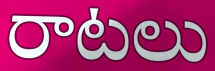
రాటలు